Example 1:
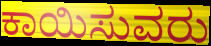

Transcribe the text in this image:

ಕಾಯಿಸುವರು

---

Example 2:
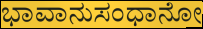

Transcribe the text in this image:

ಭಾವಾನುಸಂಧಾನೋ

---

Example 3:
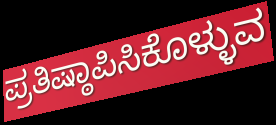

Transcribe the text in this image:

ಪ್ರತಿಷ್ಠಾಪಿಸಿಕೊಳ್ಳುವ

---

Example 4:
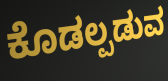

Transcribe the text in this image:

ಕೊಡಲ್ಪಡುವ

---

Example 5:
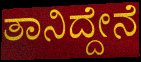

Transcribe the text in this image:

ತಾನಿದ್ದೇನೆ